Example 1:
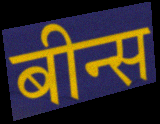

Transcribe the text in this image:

बीन्‍स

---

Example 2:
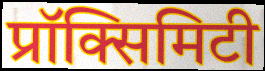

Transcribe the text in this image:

प्रॉक्सिमिटी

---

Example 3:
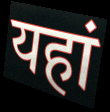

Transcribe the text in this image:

यहां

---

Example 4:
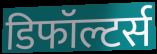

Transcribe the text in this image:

डिफॉल्टर्स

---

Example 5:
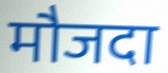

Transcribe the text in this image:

मौजदा